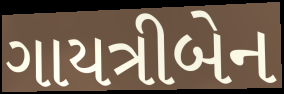
ગાયત્રીબેન